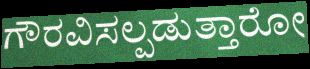
ಗೌರವಿಸಲ್ಪಡುತ್ತಾರೋ